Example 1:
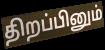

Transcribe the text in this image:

திறப்பினும்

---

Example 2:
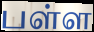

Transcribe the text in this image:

பள்ள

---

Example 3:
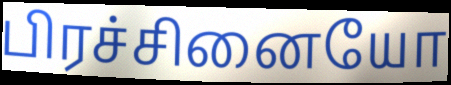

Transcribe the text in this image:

பிரச்சினையோ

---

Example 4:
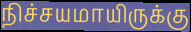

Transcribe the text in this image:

நிச்சயமாயிருக்கு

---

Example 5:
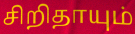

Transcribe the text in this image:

சிறிதாயும்